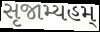
સૃજામ્યહમ્